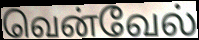
வென்வேல்